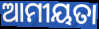
ଆମୀୟତା